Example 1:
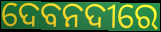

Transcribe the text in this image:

ଦେବନଦୀରେ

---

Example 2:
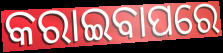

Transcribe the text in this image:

କରାଇବାପରେ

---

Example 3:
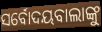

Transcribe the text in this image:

ସର୍ବୋଦୟବାଲାଙ୍କୁ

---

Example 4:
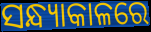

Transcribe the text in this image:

ସନ୍ଧ୍ୟାକାଳରେ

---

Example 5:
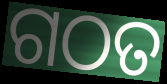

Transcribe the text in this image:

ଗଠତ